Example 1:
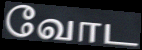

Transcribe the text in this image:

வோட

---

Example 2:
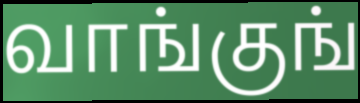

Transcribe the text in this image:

வாங்குங்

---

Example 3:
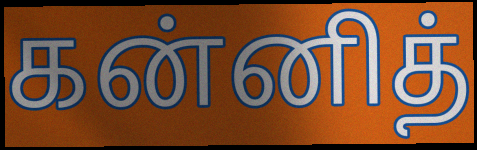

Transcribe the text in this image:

கன்னித்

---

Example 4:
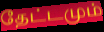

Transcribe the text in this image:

தேட்டமும்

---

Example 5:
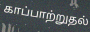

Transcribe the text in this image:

காப்பாற்றுதல்